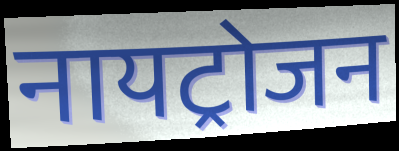
नायट्रोजन